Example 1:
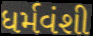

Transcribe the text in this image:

ધર્મવંશી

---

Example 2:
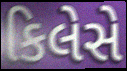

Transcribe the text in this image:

કિલેસે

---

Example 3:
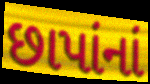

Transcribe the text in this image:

છાપાંનાં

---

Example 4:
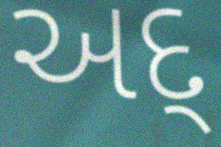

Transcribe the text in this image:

અદ્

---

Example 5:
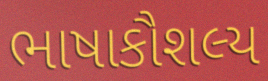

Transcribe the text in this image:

ભાષાકૌશલ્ય